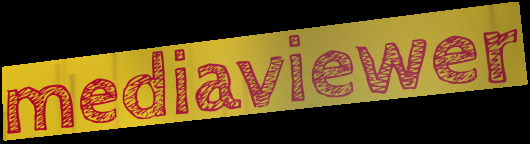
mediaviewer